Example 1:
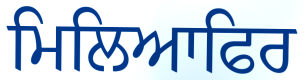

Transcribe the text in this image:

ਮਿਲਿਆਫਿਰ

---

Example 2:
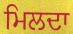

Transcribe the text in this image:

ਮਿਲਦਾ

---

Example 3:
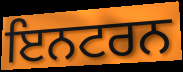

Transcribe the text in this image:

ਇਨਟਰਨ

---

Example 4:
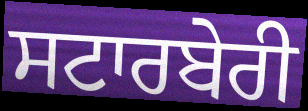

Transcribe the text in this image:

ਸਟਾਰਬੇਰੀ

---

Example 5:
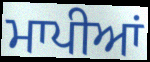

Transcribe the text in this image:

ਮਾਪੀਆਂ